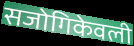
सजोगिकेवली